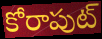
కోరాపుట్